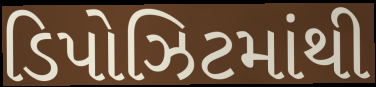
ડિપોઝિટમાંથી